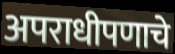
अपराधीपणाचे